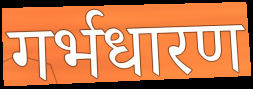
गर्भधारण